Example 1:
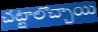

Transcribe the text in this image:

చట్టాలొచ్చాయి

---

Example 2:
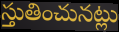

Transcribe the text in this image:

స్తుతించునట్లు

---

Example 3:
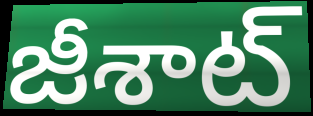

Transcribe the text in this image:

జీశాట్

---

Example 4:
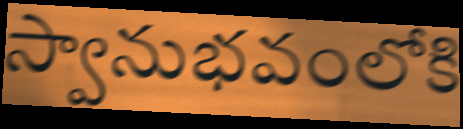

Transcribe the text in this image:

స్వానుభవంలోకి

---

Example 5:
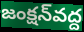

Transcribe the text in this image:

జంక్షన్‌వద్ద